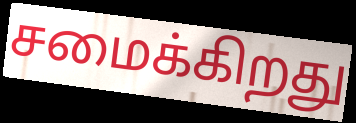
சமைக்கிறது